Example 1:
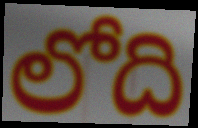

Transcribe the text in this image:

లోది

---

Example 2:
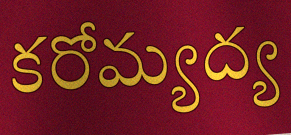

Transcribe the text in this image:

కరోమ్యద్య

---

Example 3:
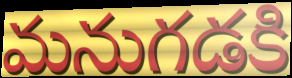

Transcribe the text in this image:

మనుగడకి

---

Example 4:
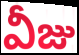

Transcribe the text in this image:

వీజు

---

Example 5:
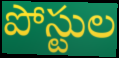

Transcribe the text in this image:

పోస్టుల